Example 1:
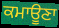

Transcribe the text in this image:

ਕਮਾਊਣਾ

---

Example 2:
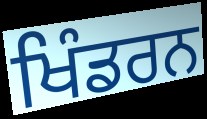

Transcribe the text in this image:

ਖਿੰਡਰਨ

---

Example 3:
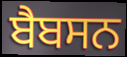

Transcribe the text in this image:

ਬੈਬਸਨ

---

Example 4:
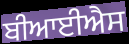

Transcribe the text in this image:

ਬੀਆਈਐਸ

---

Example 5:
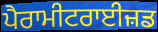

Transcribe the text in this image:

ਪੈਰਾਮੀਟਰਾਈਜ਼ਡ